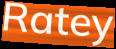
Ratey